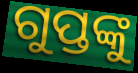
ଗୁପ୍ତଙ୍କୁ